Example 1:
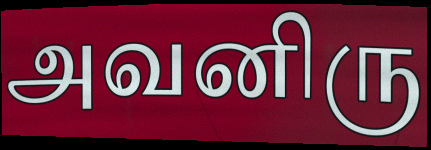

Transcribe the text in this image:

அவனிரு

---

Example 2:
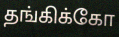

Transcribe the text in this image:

தங்கிக்கோ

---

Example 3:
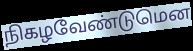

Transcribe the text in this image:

நிகழவேண்டுமென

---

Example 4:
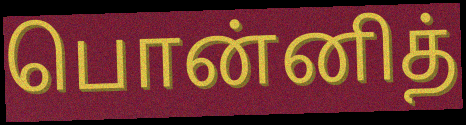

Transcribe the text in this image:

பொன்னித்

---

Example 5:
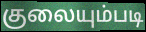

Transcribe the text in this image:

குலையும்படி